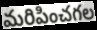
మరిపించగల